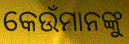
କେଉଁମାନଙ୍କୁ